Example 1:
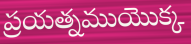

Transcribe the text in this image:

ప్రయత్నముయొక్క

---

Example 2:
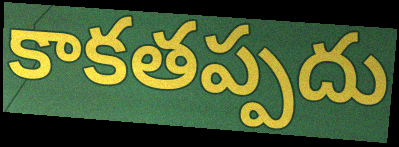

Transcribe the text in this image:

కాకతప్పదు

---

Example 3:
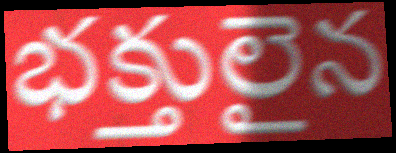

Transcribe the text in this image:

భక్తులైన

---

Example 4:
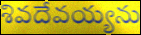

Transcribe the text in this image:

శివదేవయ్యను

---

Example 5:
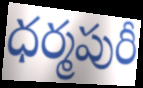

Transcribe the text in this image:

ధర్మపురీ